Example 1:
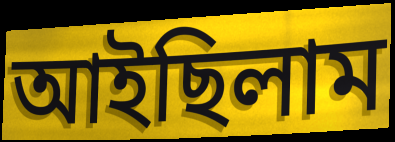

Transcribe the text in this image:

আইছিলাম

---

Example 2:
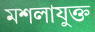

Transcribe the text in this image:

মশলাযুক্ত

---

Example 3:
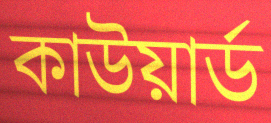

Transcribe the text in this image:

কাউয়ার্ড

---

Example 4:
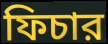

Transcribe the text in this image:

ফিচার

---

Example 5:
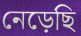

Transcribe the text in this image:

নেড়েছি